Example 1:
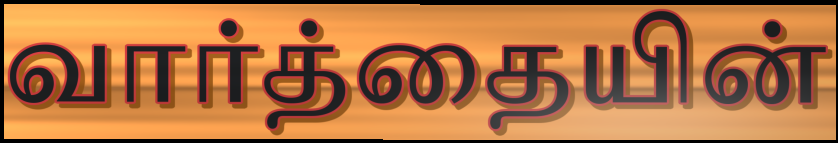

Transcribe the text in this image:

வார்த்தையின்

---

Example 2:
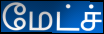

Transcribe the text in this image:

மேட்ச்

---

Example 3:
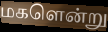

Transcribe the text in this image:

மகளென்று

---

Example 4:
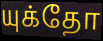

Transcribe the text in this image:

யுக்தோ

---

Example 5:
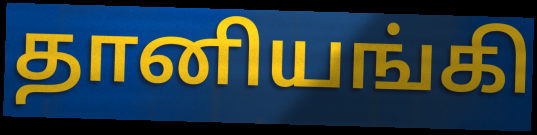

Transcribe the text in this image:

தானியங்கி